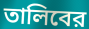
তালিবের